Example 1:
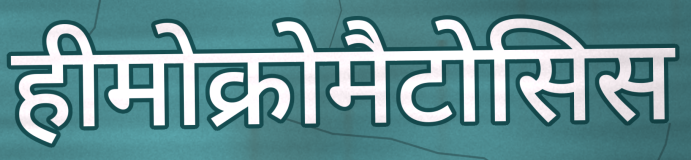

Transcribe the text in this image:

हीमोक्रोमैटोसिस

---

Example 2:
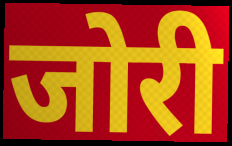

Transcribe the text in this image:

जोरी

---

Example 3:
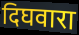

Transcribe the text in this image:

दिघवारा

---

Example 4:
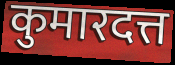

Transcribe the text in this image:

कुमारदत्त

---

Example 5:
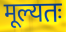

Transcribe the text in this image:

मूल्यतः